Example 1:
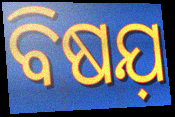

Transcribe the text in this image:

ବିଷଯ଼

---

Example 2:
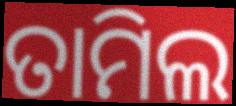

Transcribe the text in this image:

ତାମିଲ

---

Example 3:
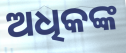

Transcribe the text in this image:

ଅଧିକଙ୍କ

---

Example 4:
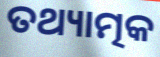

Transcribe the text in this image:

ତଥ୍ୟାତ୍ମକ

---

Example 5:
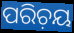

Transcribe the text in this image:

ପରିଚ଼ୟ